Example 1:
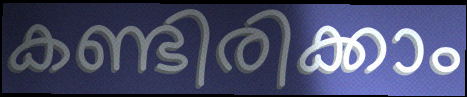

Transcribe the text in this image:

കണ്ടിരിക്കാം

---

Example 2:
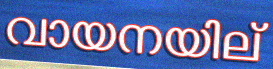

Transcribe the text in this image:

വായനയില്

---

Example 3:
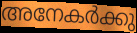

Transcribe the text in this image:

അനേകർക്കു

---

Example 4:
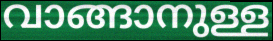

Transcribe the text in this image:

വാങ്ങാനുള്ള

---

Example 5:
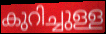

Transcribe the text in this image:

കുറിച്ചുള്ള